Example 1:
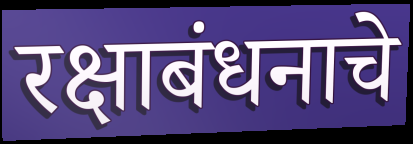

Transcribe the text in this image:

रक्षाबंधनाचे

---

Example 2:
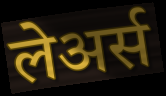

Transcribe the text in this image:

लेअर्स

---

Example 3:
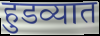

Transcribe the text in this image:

हुडव्यात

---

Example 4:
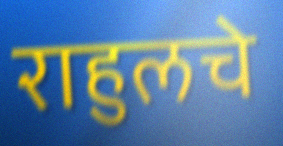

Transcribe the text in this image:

राहुलचे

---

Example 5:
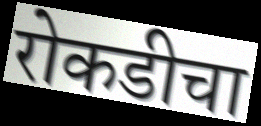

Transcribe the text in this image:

रोकडीचा